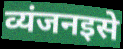
व्यंजनइसे